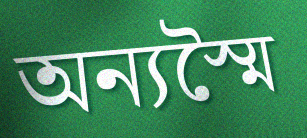
অন্যস্মৈ